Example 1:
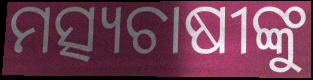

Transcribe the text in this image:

ମତ୍ସ୍ୟଚାଷୀଙ୍କୁ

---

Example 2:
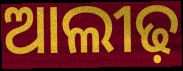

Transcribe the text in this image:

ଆଲୀଢ଼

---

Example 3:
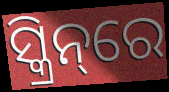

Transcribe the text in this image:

ସ୍କ୍ରିନ୍‌ରେ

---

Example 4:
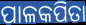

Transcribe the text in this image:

ପାଳକପିତା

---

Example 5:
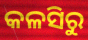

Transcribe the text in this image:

କଳସିରୁ